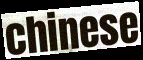
chinese